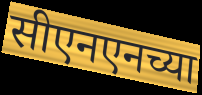
सीएनएनच्या